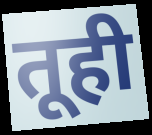
तूही